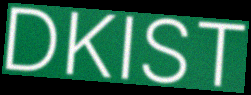
DKIST